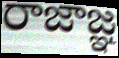
రాజాజ్ఞ